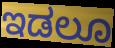
ಇಡಲೂ